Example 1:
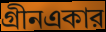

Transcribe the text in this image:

গ্রীনএকার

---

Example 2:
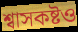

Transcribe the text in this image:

শ্বাসকষ্টও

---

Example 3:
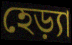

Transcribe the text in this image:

হেড়্যা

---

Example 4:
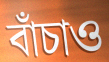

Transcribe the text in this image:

বাঁচাও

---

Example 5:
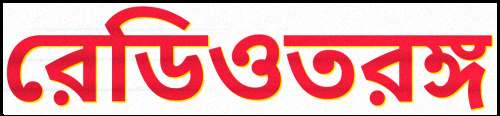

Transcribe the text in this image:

রেডিওতরঙ্গ